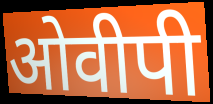
ओवीपी